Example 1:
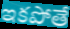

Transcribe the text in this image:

ఇకపోతే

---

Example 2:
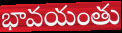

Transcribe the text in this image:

భావయంతు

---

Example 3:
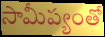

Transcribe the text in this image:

సామీప్యంతో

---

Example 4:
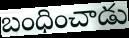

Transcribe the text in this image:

బంధించాడు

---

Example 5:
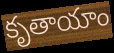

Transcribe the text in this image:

కృతాయాం